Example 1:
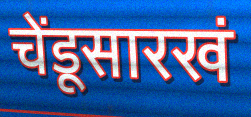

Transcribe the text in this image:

चेंडूसारखं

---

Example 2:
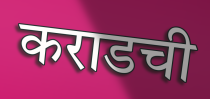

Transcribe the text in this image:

कराडची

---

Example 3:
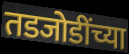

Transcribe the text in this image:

तडजोडींच्या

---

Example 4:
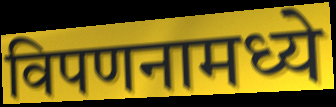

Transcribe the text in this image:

विपणनामध्ये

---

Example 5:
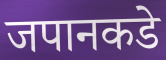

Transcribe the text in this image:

जपानकडे